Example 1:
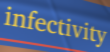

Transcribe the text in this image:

infectivity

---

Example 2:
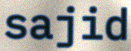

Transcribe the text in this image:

sajid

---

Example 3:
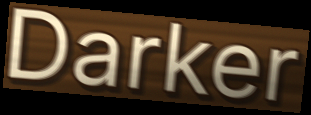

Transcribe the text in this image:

Darker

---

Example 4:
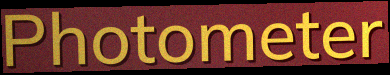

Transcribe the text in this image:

Photometer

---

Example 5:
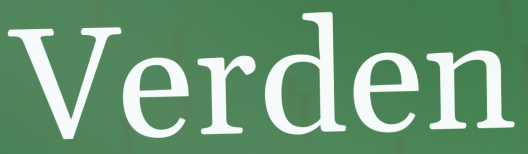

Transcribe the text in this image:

Verden